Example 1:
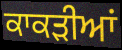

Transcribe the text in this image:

ਕਾਕੜੀਆਂ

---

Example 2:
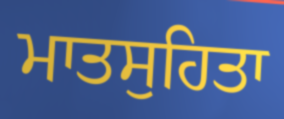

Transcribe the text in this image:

ਮਾਤਸੁਹਿਤਾ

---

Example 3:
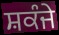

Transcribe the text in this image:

ਸ਼ਕੰਜੇ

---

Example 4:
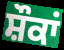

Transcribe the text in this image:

ਸ਼ੌਕਾਂ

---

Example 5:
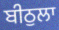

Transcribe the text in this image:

ਬੀਠੁਲਾ